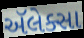
ઍલેક્સા